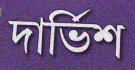
দার্ভিশ